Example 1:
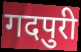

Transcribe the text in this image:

गदपुरी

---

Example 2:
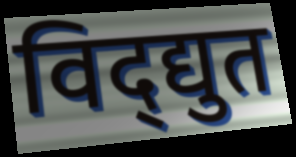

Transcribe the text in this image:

विद्द्युत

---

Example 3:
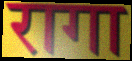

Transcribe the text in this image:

रागा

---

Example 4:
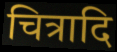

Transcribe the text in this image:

चित्रादि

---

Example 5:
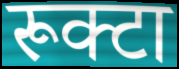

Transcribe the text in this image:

रूक्टा